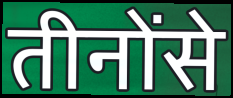
तीनोंसे